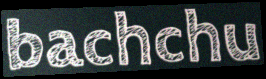
bachchu